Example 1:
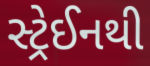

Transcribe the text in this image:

સ્ટ્રેઈનથી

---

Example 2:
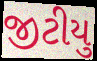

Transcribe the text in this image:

જીટીયુ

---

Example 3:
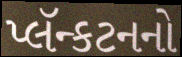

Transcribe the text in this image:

પ્લૅન્કટનનો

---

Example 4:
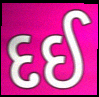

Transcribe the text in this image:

દઈ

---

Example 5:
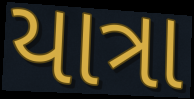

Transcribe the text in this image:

યાત્રા